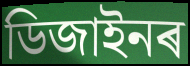
ডিজাইনৰ